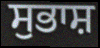
ਸੁਭਾਸ਼